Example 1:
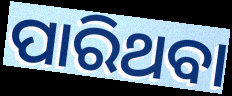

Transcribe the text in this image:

ପାରିଥବା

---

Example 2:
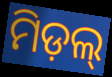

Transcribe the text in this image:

ମିଡ଼ଲ୍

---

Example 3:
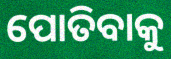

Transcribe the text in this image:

ପୋତିବାକୁ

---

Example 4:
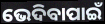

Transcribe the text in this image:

ଭେଦିବାପାଇଁ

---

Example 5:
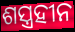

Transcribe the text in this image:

ଶସ୍ତ୍ରହୀନ